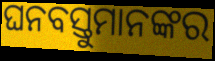
ଘନବସ୍ତୁମାନଙ୍କର